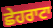
ਛੇਹਰਾਟਾ